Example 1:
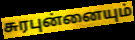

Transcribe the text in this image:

சுரபுன்னையும்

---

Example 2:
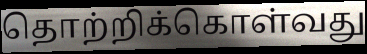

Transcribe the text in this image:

தொற்றிக்கொள்வது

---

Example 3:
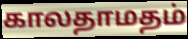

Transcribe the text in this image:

காலதாமதம்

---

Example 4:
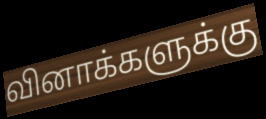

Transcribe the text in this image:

வினாக்களுக்கு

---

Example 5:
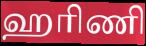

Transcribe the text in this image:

ஹரிணி